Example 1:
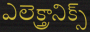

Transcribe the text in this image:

ఎలెక్త్రానిక్స్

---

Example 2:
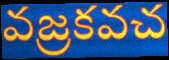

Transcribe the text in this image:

వజ్రకవచ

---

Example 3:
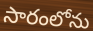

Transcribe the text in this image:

సారంలోను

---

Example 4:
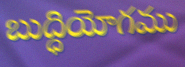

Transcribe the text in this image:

బుద్ధియోగము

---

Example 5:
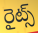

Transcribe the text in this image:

రైట్స్